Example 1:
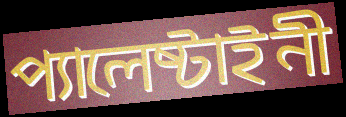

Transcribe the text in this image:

প্যালেষ্টাইনী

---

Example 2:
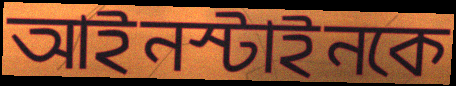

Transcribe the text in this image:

আইনস্টাইনকে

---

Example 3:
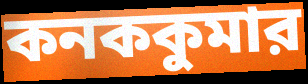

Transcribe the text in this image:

কনককুমার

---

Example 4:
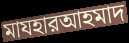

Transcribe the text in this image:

মাযহারআহমাদ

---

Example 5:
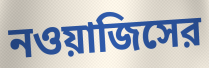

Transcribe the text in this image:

নওয়াজিসের